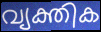
വ്യക്തിക